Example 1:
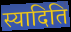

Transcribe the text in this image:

स्यादिति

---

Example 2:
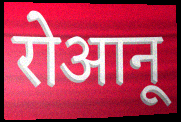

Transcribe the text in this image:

रोआनू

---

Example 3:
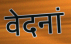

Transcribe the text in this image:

वेदनां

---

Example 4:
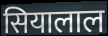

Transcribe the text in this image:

सियालाल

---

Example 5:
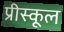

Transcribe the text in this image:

प्रीस्कूल